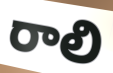
రాలి